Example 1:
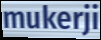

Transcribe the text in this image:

mukerji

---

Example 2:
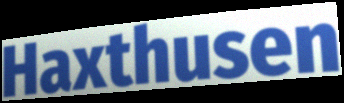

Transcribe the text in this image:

Haxthusen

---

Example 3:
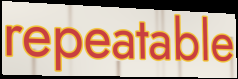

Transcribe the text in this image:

repeatable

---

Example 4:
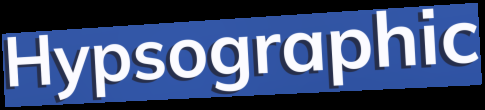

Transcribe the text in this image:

Hypsographic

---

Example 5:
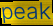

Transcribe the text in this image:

peak